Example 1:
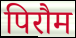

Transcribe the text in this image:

पिरौम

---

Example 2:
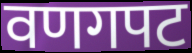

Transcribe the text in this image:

वणगपट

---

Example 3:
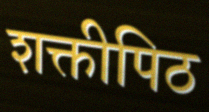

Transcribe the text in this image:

शक्तीपिठ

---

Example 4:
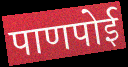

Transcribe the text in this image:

पाणपोई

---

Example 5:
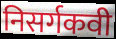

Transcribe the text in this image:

निसर्गकवी